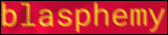
blasphemy